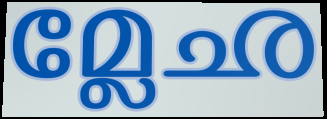
മ്ലേഛ